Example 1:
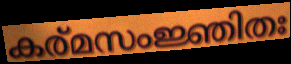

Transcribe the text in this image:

കര്മസംജ്ഞിതഃ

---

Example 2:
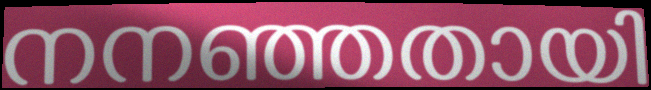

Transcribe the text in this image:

നനഞ്ഞതായി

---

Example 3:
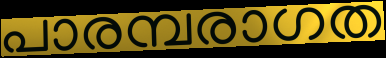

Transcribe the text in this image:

പാരമ്പരാഗത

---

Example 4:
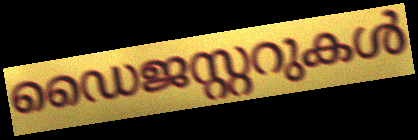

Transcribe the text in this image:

ഡൈജസ്റ്ററുകൾ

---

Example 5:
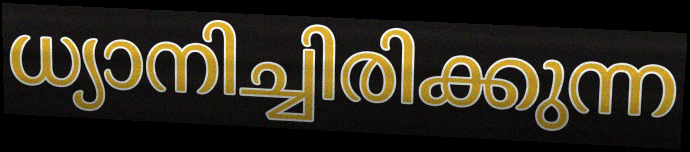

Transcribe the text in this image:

ധ്യാനിച്ചിരിക്കുന്ന